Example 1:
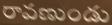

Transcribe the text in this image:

రావణుండు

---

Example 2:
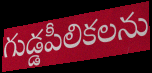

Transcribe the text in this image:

గుడ్డపీలికలను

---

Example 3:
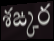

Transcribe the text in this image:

శఙ్కర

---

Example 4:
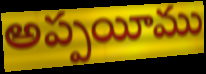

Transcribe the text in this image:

అప్పయీము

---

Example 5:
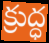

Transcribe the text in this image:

క్రుద్ధ